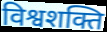
विश्वशक्ति